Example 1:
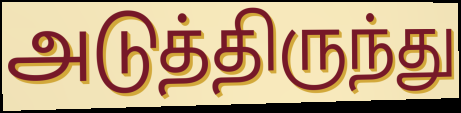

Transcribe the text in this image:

அடுத்திருந்து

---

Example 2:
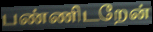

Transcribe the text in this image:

பண்ணிடறேன்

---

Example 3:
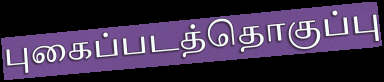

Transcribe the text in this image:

புகைப்படத்தொகுப்பு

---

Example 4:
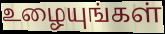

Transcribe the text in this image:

உழையுங்கள்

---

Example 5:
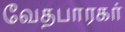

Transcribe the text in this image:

வேதபாரகர்